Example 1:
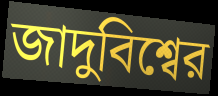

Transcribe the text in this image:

জাদুবিশ্বের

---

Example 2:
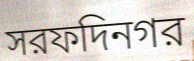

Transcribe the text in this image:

সরফদিনগর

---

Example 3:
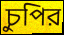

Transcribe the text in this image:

চুপির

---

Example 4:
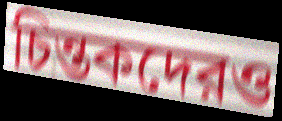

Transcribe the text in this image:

চিন্তকদেরও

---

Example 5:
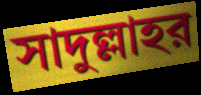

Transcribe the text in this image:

সাদুল্লাহর